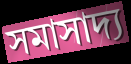
সমাসাদ্য